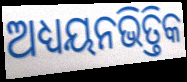
ଅଧ୍ୟୟନଭିତ୍ତିକ